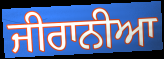
ਜੀਰਾਨੀਆ